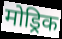
मोड्रिक